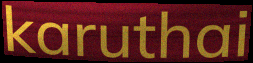
karuthai